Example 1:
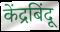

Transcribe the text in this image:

केंद्रबिंदू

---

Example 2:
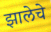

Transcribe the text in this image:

झालेचे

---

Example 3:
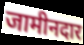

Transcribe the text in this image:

जामीनदार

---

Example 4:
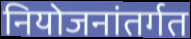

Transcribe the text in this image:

नियोजनांतर्गत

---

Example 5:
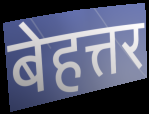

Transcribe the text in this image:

बेहत्तर